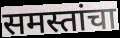
समस्तांचा